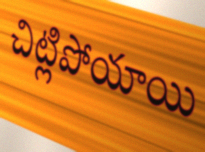
చిట్లిపోయాయి